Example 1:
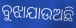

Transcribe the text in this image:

ବୁଝାଯାଉଅଛି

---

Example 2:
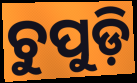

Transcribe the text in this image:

ଚୁପୁଡ଼ି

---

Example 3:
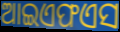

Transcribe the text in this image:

ଆଇଏଫଏସ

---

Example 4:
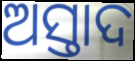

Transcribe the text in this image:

ଅସ୍ତାଦ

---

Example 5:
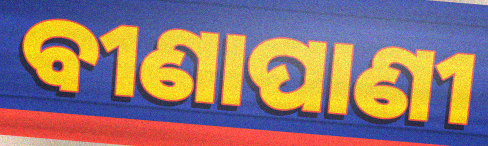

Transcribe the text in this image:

ବୀଣାପାଣୀ